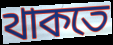
থাকতে